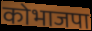
कोभाजपा